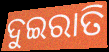
ଦୁଇରାତି